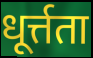
धूर्त्तता